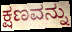
ಕ್ಷಣವನ್ನು